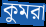
কুমরা